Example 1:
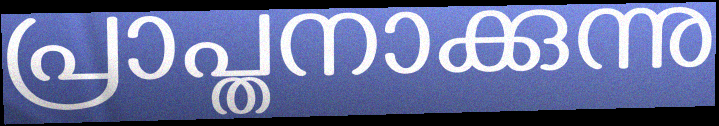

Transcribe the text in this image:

പ്രാപ്തനാക്കുന്നു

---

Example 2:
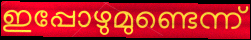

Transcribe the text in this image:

ഇപ്പോഴുമുണ്ടെന്ന്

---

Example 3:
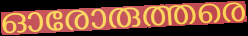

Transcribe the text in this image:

ഓരോരുത്തരെ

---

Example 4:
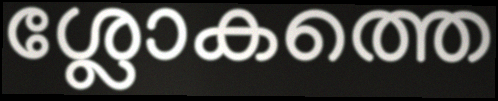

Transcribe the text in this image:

ശ്ലോകത്തെ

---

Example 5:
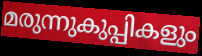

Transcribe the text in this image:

മരുന്നുകുപ്പികളും